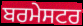
ਬਰਮੇਸਟਰ